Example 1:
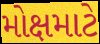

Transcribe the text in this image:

મોક્ષમાટે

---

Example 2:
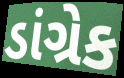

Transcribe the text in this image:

ડાંગ્રેક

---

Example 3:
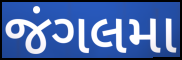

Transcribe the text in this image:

જંગલમા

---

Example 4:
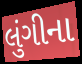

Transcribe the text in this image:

લુંગીના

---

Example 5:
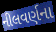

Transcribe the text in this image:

નીલવર્ણના